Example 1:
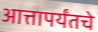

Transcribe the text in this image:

आत्तापर्यंतचे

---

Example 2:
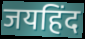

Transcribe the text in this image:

जयहिंद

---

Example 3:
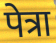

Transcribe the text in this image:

पेत्रा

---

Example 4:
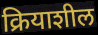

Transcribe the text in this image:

क्रियाशील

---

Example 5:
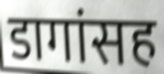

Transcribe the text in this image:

डागांसह